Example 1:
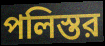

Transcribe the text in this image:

পলিস্তর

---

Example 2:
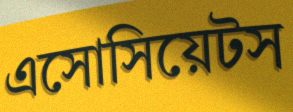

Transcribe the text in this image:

এসোসিয়েটস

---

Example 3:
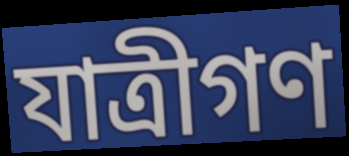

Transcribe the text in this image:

যাত্রীগণ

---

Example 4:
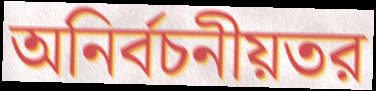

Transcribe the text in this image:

অনির্বচনীয়তর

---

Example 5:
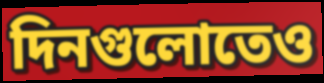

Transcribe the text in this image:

দিনগুলোতেও